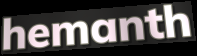
hemanth